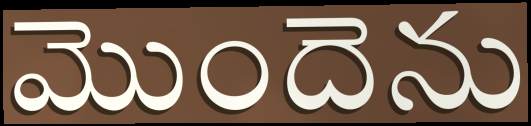
మొందెను